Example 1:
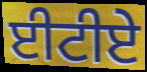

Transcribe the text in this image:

ਈਟੀਏ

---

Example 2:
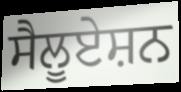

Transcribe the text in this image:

ਸੈਲੂਏਸ਼ਨ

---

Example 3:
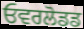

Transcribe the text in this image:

ਓਵਰਲੋਡਡ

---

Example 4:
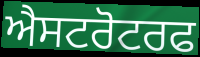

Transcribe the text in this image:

ਐਸਟਰੋਟਰਫ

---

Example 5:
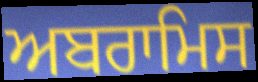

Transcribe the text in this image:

ਅਬਰਾਮਿਸ